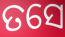
ତସେ